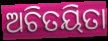
ଅଚିତୟିତା